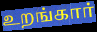
உறங்கார்